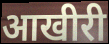
आखीरी